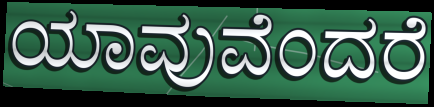
ಯಾವುವೆಂದರೆ